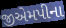
જીએમપીના